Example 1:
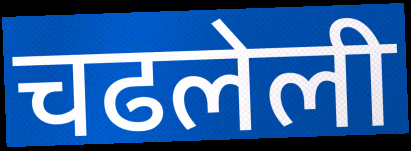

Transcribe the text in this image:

चढलेली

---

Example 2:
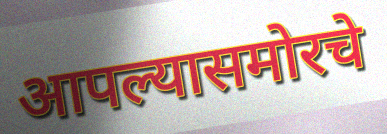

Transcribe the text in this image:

आपल्यासमोरचे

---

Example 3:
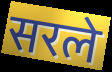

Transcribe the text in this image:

सरले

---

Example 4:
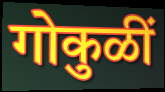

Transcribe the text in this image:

गोकुळीं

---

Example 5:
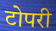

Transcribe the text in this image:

टोपरी